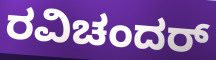
ರವಿಚಂದರ್